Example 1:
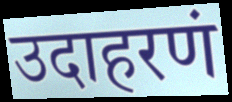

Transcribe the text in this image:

उदाहरणं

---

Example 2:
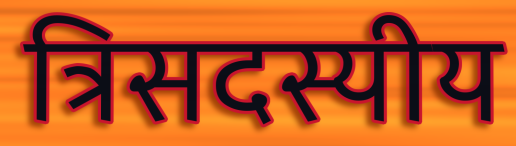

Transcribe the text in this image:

त्रिसदस्यीय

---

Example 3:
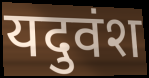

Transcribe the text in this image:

यदुवंश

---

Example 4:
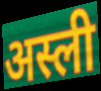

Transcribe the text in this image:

अस्ली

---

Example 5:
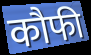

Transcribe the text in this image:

कौफी